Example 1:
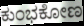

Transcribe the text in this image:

ಕುಂಭಕೋಣ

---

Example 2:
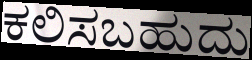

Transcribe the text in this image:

ಕಲಿಸಬಹುದು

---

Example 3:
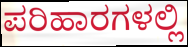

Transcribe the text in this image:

ಪರಿಹಾರಗಳಲ್ಲಿ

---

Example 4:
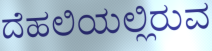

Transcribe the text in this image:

ದೆಹಲಿಯಲ್ಲಿರುವ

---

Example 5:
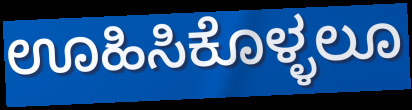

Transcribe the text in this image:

ಊಹಿಸಿಕೊಳ್ಳಲೂ